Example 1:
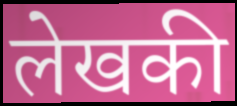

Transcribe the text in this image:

लेखकी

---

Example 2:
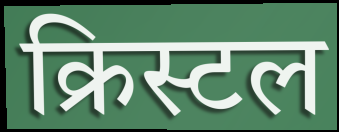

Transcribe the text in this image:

क्रिस्टल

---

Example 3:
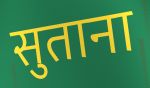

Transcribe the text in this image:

सुताना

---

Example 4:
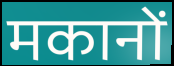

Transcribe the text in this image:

मकानों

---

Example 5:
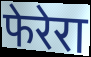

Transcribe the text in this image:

फेरेरा